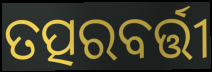
ତତ୍ପରବର୍ତ୍ତୀ